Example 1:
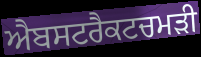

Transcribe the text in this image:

ਐਬਸਟਰੈਕਟਚਮੜੀ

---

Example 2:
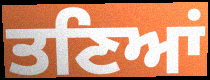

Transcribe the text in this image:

ਤਣਿਆਂ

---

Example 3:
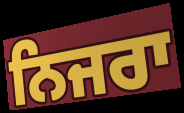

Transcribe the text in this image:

ਨਿਜਰਾ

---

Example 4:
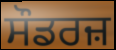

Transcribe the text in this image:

ਸੌਡਰਜ਼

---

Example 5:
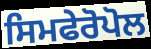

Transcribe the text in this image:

ਸਿਮਫੇਰੋਪੋਲ